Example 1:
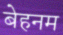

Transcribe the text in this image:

बेहनम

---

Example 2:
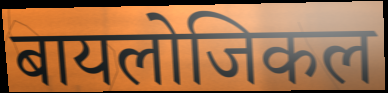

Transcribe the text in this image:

बायलोजिकल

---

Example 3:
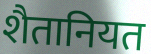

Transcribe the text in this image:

शैतानियत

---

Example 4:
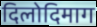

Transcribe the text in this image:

दिलोदिमाग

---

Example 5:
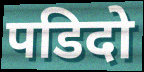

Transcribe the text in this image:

पडिदो